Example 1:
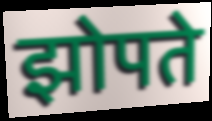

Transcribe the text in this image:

झोपते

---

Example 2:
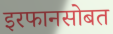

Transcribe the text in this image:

इरफानसोबत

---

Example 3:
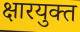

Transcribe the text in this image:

क्षारयुक्त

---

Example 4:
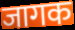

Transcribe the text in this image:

जागक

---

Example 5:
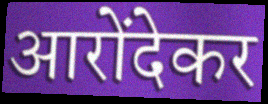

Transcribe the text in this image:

आरोंदेकर